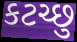
કટચ્છુ